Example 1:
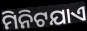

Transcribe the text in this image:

ମିନିଟଯାଏ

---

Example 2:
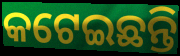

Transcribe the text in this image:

କଟେଇଛନ୍ତି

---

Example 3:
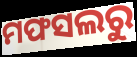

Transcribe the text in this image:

ମଫସଲରୁ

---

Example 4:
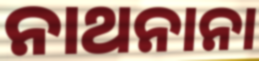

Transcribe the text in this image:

ନାଥନାନା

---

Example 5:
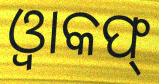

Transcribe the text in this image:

ଓ୍ଵାକଫ୍